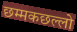
छम्मकछल्लो